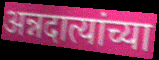
अन्नदात्यांच्या